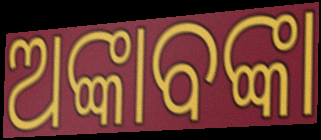
ଅଙ୍କାବଙ୍କା